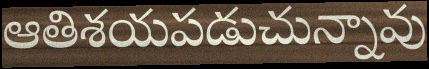
ఆతిశయపడుచున్నావు